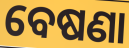
ବେଷଣା